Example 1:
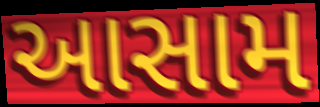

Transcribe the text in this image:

આસામ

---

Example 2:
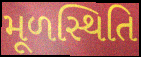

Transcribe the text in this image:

મૂળસ્થિતિ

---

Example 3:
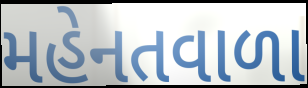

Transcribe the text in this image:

મહેનતવાળા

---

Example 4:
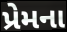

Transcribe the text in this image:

પ્રેમના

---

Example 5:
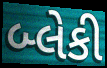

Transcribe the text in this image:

બ્લેકી